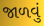
જાળવું